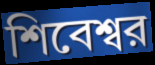
শিবেশ্বর